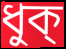
ধুক্